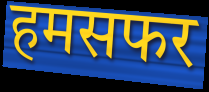
हमसफर